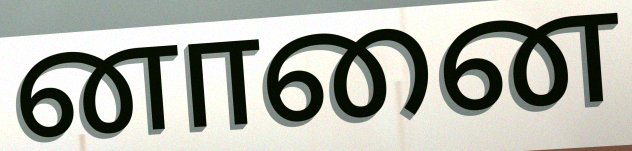
னானை